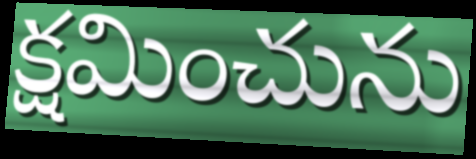
క్షమించును